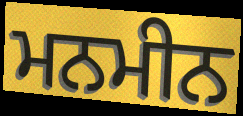
ਮਨਮੀਨ